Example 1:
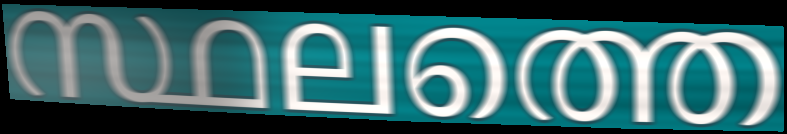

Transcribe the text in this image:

സ്ഥലത്തെ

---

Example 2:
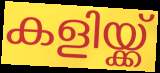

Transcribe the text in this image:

കളിയ്ക്ക്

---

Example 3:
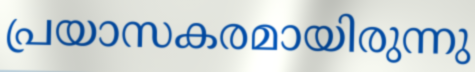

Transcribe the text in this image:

പ്രയാസകരമായിരുന്നു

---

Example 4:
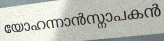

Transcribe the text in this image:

യോഹന്നാൻസ്നാപകൻ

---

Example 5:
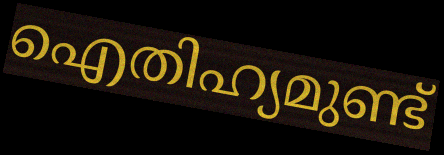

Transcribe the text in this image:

ഐതിഹ്യമുണ്ട്